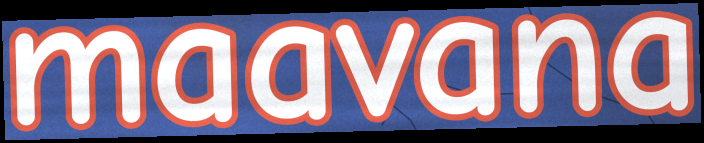
maavana